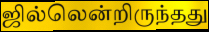
ஜில்லென்றிருந்தது